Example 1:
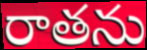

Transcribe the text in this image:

రాతను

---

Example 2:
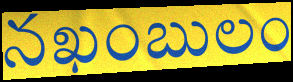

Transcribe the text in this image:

నఖంబులం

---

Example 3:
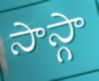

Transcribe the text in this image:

సాస్గా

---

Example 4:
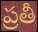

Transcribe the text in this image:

ప్రతీ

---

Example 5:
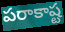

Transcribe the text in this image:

పరాకాష్ట